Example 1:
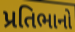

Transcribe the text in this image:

પ્રતિભાનો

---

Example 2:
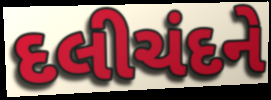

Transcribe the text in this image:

દલીચંદને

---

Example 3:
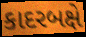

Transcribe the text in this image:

કાદરબક્ષે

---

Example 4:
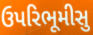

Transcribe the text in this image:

ઉપરિભૂમીસુ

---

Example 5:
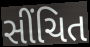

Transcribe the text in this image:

સીંચિત